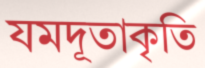
যমদূতাকৃতি